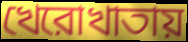
খেরোখাতায়